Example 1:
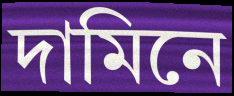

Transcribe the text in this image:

দামিনে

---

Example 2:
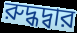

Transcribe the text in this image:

রুদ্ধদ্বার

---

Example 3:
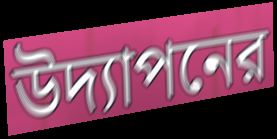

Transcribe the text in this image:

উদ্যাপনের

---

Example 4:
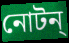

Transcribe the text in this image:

নোটন্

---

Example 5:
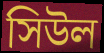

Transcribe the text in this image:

সিউল